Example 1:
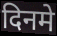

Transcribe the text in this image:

दिनमे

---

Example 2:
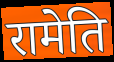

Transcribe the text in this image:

रामेति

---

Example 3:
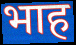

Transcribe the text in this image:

भाह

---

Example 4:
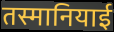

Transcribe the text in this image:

तस्मानियाई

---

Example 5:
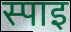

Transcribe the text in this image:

स्पाइ